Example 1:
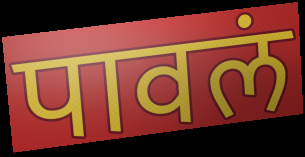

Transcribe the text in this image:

पावलं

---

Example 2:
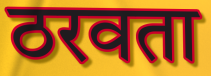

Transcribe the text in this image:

ठरवता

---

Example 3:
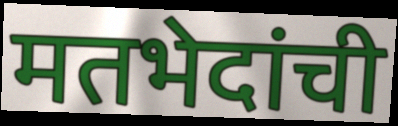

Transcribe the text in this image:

मतभेदांची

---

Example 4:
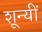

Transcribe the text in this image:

शून्यीं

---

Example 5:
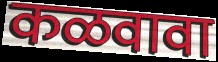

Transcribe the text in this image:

कळवावा